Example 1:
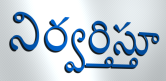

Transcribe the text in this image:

నిర్వర్తిస్తూ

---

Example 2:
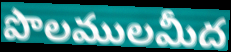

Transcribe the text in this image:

పొలములమీద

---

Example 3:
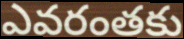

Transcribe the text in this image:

ఎవరంతకు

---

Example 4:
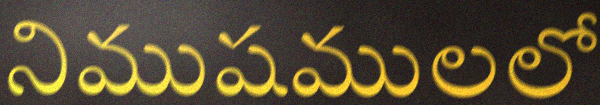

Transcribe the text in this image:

నిముషములలో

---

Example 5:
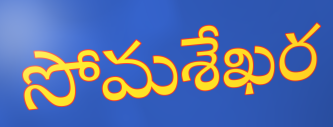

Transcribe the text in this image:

సోమశేఖర